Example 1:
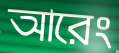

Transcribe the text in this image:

আরেং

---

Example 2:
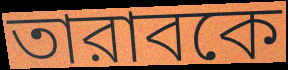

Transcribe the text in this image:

তারাবকে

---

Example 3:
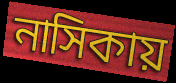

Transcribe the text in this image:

নাসিকায়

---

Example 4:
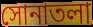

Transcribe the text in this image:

সোনাতলা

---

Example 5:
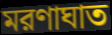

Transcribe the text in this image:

মরণাঘাত